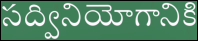
సద్వినియోగానికి